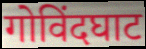
गोविंदघाट